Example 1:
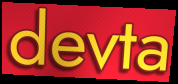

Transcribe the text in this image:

devta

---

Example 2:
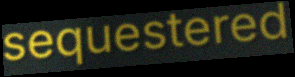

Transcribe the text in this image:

sequestered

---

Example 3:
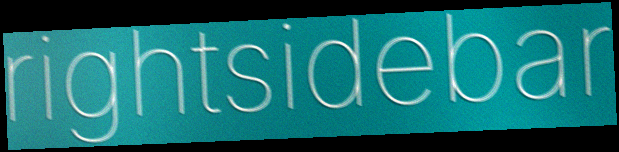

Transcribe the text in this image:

rightsidebar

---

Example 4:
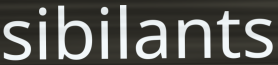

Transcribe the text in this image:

sibilants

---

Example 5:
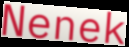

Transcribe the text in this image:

Nenek